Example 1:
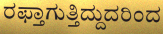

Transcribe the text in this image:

ರಫ್ತಾಗುತ್ತಿದ್ದುದರಿಂದ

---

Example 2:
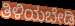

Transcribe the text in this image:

ತಿಳಿಯಬೇಡಿ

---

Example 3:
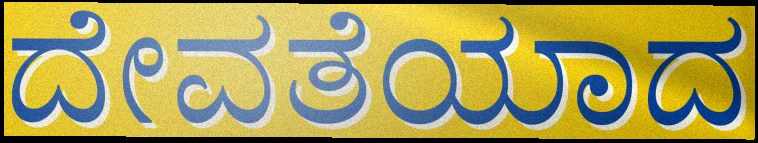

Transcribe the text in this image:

ದೇವತೆಯಾದ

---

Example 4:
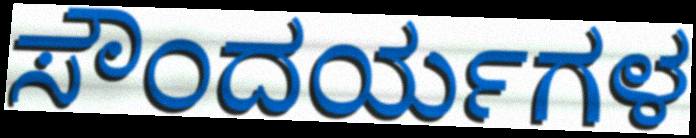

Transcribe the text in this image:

ಸೌಂದರ್ಯಗಳ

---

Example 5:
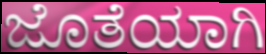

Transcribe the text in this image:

ಜೊತೆಯಾಗಿ